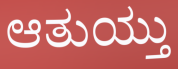
ಆತುಯ್ತು